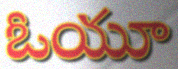
ఓయూ